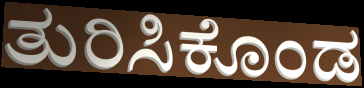
ತುರಿಸಿಕೊಂಡ